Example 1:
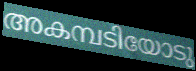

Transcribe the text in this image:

അകമ്പടിയോടു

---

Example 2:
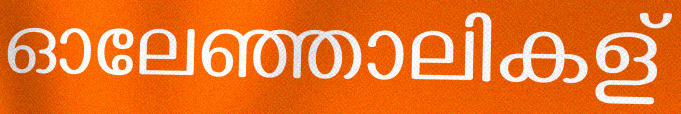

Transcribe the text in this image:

ഓലേഞ്ഞാലികള്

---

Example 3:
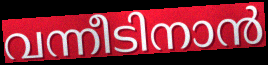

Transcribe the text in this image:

വന്നീടിനാൻ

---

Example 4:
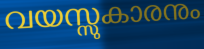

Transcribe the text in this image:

വയസ്സുകാരനും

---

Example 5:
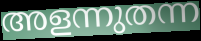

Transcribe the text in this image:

അളന്നുതന്ന